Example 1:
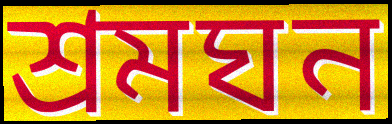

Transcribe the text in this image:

শ্রমঘন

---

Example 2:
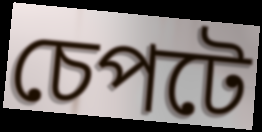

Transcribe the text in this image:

চেপটে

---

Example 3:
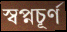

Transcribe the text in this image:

স্বপ্নচূর্ণ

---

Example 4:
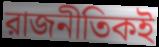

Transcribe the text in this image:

রাজনীতিকই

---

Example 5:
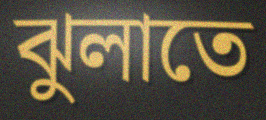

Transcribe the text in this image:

ঝুলাতে